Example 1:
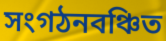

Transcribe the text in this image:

সংগঠনবঞ্চিত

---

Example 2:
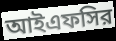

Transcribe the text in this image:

আইএফসির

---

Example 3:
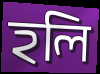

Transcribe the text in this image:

হলি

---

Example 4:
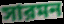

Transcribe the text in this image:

সারমন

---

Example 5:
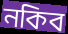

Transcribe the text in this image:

নকিব